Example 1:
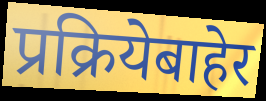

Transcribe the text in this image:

प्रक्रियेबाहेर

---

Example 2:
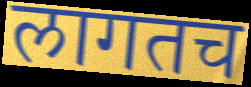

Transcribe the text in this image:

लागतच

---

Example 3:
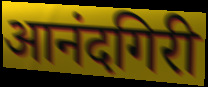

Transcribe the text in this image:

आनंदगिरी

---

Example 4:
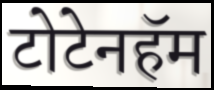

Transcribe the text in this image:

टोटेनहॅम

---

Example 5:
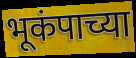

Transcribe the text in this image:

भूकंपाच्या